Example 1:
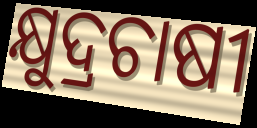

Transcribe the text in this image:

କ୍ଷୁଦ୍ରଚାଷୀ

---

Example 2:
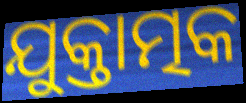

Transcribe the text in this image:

ଯୁକ୍ତାତ୍ମକ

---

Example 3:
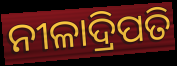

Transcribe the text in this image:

ନୀଳାଦ୍ରିପତି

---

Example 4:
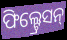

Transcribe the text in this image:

ଫିଲ୍ଟ୍ରେସନ୍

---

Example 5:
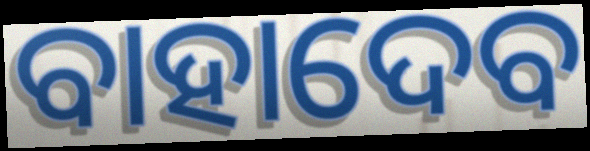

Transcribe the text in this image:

ବାହାଦେବ